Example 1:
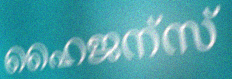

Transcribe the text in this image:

ഹൈജന്സ്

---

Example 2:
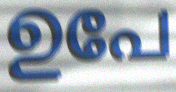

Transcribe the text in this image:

ഉപേ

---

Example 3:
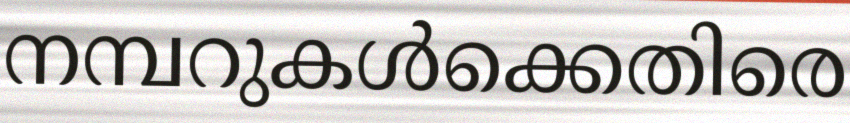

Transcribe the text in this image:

നമ്പറുകൾക്കെതിരെ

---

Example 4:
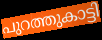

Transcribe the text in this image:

പുറത്തുകാട്ടി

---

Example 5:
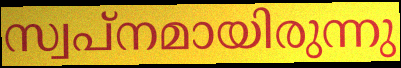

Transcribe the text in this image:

സ്വപ്നമായിരുന്നു